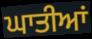
ਘਾਤੀਆਂ